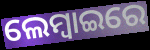
ଲେମ୍ବାଇରେ